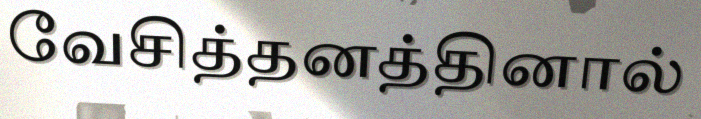
வேசித்தனத்தினால்